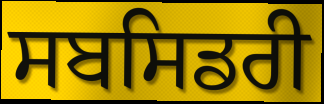
ਸਬਸਿਡਰੀ